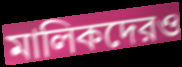
মালিকদেরও